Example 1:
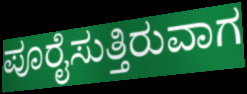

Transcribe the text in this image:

ಪೂರೈಸುತ್ತಿರುವಾಗ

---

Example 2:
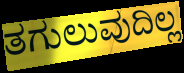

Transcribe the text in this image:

ತಗುಲುವುದಿಲ್ಲ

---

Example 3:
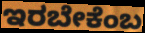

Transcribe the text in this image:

ಇರಬೇಕೆಂಬ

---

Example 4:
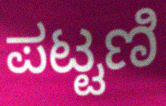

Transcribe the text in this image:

ಪಟ್ಟಣಿ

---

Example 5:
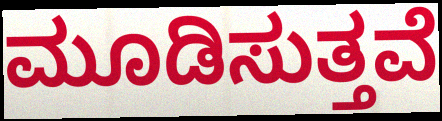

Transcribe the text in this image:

ಮೂಡಿಸುತ್ತವೆ